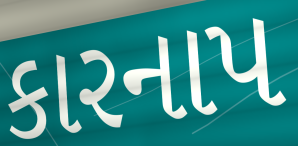
કારનાપ